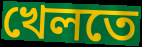
খেলতে